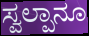
ಸ್ವಲ್ಪಾನೂ